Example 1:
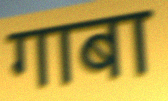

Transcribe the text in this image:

गाबा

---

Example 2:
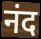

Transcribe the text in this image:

नंद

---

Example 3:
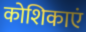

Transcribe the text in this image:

कोशिकाएं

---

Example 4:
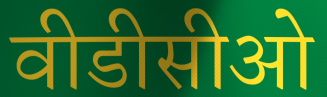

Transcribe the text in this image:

वीडीसीओ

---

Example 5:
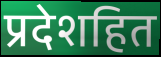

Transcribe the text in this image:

प्रदेशहित